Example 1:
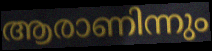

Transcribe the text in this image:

ആരാണിന്നും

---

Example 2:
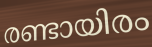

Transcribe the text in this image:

രണ്ടായിരം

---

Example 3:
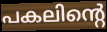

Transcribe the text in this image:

പകലിന്റെ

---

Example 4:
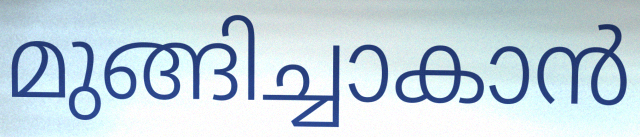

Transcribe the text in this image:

മുങ്ങിച്ചാകാൻ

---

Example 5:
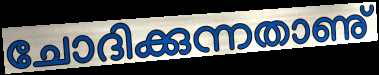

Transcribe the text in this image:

ചോദിക്കുന്നതാണു്